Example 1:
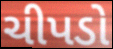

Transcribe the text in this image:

ચીપડો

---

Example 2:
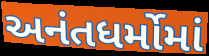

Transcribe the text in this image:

અનંતધર્મોમાં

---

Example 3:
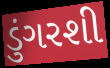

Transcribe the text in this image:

ડુંગરશી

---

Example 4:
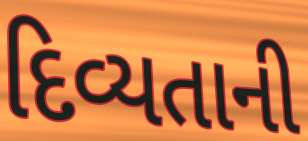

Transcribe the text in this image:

દિવ્યતાની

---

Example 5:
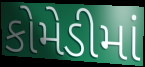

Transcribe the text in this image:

કોમેડીમાં